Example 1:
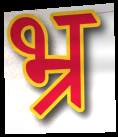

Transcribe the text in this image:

भ्र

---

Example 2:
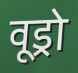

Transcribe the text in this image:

वूड्रो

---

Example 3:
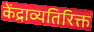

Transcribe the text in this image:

केंद्राव्यतिरिक्त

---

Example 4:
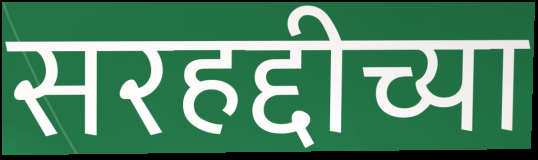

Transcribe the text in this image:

सरहद्दीच्या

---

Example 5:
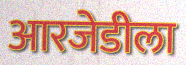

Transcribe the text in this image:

आरजेडीला